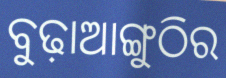
ବୁଢ଼ାଆଙ୍ଗୁଠିର